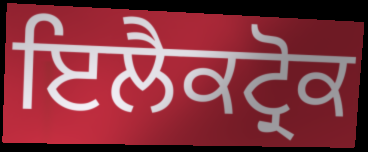
ਇਲੈਕਟ੍ਰੋਕ